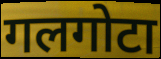
गलगोटा